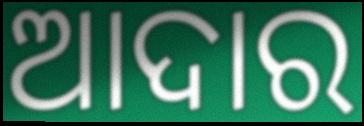
ଆଦାର